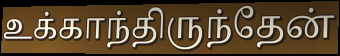
உக்காந்திருந்தேன்